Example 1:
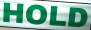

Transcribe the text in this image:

HOLD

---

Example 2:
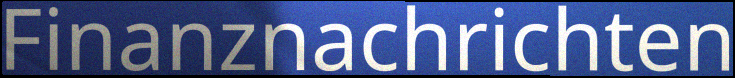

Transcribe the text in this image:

Finanznachrichten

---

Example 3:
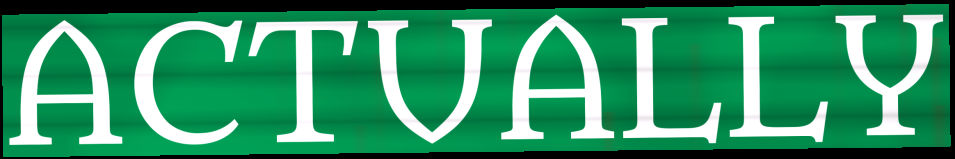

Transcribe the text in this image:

ACTUALLY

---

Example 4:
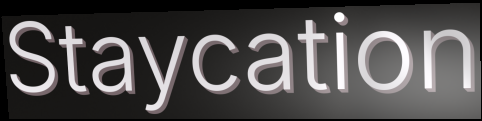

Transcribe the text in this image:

Staycation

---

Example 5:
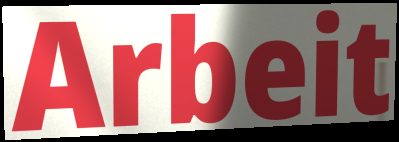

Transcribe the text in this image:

Arbeit